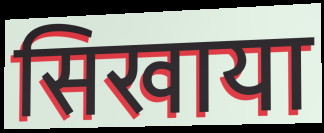
सिखाया